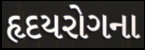
હૃદયરોગના